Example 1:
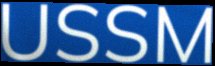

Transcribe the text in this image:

USSM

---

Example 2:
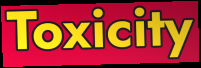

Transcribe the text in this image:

Toxicity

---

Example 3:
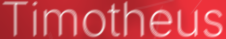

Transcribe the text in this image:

Timotheus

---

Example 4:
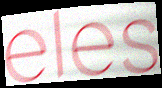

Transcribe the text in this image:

eles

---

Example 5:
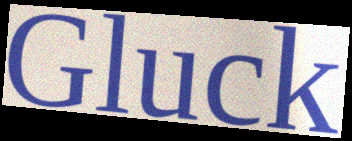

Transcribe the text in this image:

Gluck